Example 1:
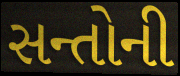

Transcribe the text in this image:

સન્તોની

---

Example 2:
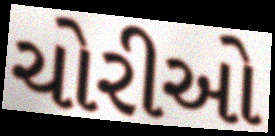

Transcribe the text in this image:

ચોરીઓ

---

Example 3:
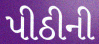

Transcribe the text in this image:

પીઠીની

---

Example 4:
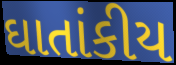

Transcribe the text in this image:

ઘાતાંકીય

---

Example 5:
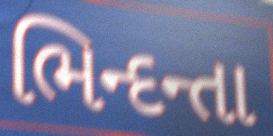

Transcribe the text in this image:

ભિન્દન્તા